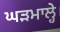
ਘੜਮਾਲ੍ਹੇ